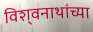
विश्वनाथांच्या